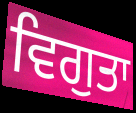
ਵਿਗੁਤਾ